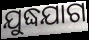
ଯୁଦ୍ଧଯାଗ